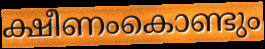
ക്ഷീണംകൊണ്ടും